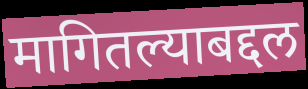
मागितल्याबद्दल